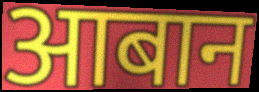
आबान